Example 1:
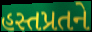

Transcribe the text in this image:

હસ્તપ્રતને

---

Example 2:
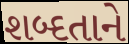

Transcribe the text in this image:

શબ્દતાને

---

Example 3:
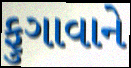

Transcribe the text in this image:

ફુગાવાને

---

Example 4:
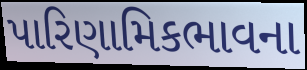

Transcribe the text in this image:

પારિણામિકભાવના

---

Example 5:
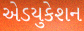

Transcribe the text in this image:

એડયુકેશન